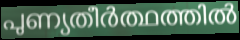
പുണ്യതീർത്ഥത്തിൽ